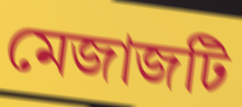
মেজাজটি